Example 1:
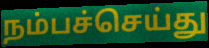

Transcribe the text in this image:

நம்பச்செய்து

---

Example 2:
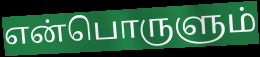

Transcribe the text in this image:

என்பொருளும்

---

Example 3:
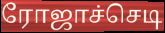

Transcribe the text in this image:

ரோஜாச்செடி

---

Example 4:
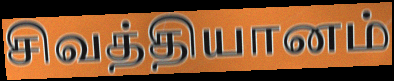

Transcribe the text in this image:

சிவத்தியானம்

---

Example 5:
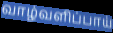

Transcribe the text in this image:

வாழ்வளிப்பாய்